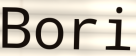
Bori